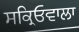
ਸਕ੍ਰਿਓਵਾਲਾ